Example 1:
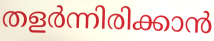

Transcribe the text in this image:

തളർന്നിരിക്കാൻ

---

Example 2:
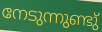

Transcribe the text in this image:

നേടുന്നുണ്ടു്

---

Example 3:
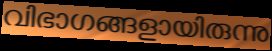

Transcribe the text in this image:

വിഭാഗങ്ങളായിരുന്നു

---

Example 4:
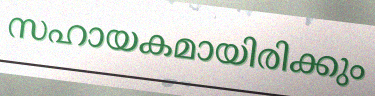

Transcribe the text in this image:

സഹായകമായിരിക്കും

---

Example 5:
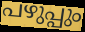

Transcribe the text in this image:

പഴുപ്പും